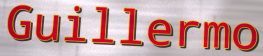
Guillermo